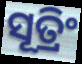
ସୂତ୍ରିଂ